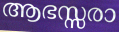
ആഭസ്സരാ